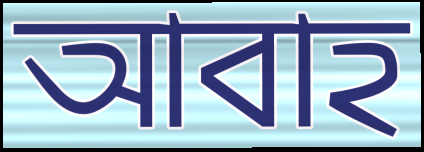
আবাহ